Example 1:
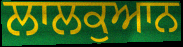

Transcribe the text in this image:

ਲਾਲਕੁਆਨ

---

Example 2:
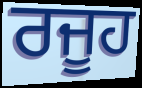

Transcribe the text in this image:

ਰਜੂਹ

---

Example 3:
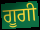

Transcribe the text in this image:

ਗੂਗੀ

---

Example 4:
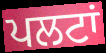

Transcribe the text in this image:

ਪਲਟਾਂ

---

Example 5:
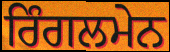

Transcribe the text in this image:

ਰਿੰਗਲਮੇਨ